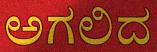
ಅಗಲಿದ